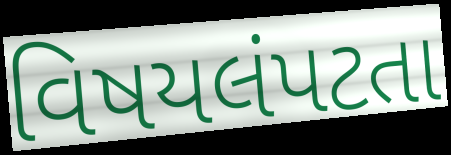
વિષયલંપટતા